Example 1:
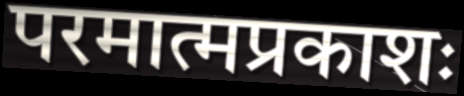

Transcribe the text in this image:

परमात्मप्रकाशः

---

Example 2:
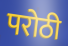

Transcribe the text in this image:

परोठी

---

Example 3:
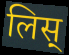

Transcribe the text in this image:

लिस्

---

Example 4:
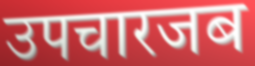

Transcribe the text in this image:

उपचारजब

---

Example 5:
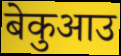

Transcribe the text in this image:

बेकुआउ